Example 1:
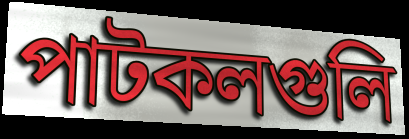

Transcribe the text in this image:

পাটকলগুলি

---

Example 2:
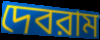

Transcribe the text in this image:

দেবরাম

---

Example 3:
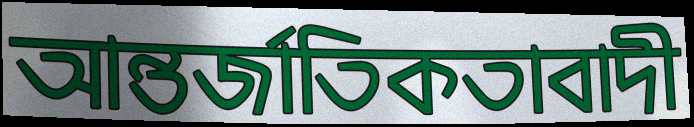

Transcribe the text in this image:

আন্তর্জাতিকতাবাদী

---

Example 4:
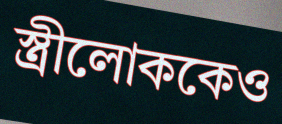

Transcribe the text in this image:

স্ত্রীলোককেও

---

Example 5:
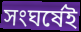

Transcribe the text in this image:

সংঘর্ষেই